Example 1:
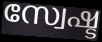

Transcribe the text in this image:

സ്വേഷ്ട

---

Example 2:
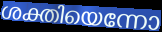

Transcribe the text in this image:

ശക്തിയെന്നോ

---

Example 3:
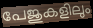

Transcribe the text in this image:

പേജുകളിലും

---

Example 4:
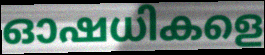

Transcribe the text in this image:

ഓഷധികളെ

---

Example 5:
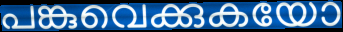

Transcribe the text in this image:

പങ്കുവെക്കുകയോ